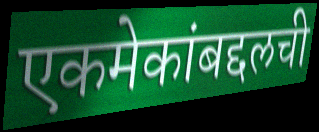
एकमेकांबद्दलची